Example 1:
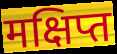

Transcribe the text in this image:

मक्षिप्त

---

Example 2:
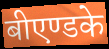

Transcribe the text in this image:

बीएण्डके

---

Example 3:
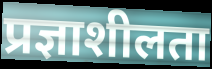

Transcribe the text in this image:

प्रज्ञाशीलता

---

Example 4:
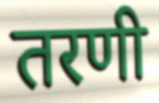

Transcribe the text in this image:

तरणी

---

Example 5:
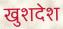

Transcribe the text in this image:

खुशदेश